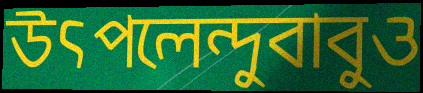
উৎপলেন্দুবাবুও